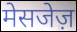
मेसजेज़